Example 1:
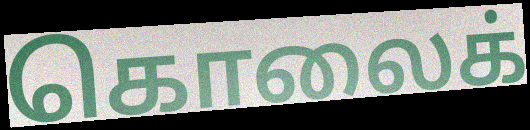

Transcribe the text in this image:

கொலைக்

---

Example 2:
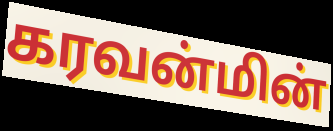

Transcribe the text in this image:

கரவன்மின்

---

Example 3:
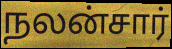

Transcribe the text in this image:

நலன்சார்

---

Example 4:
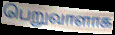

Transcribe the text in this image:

பெறுவாளாக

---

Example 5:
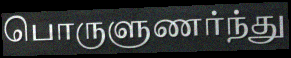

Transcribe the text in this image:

பொருளுணர்ந்து